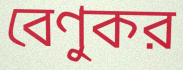
বেণুকর